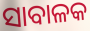
ସାବାଳକ